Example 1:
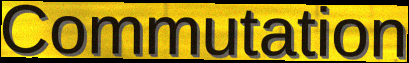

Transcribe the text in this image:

Commutation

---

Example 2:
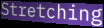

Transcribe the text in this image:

Stretching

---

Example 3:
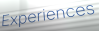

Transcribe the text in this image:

Experiences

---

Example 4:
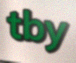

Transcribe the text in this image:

tby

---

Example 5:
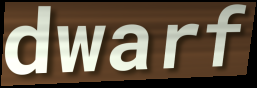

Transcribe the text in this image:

dwarf